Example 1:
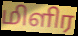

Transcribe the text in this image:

மிளிர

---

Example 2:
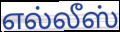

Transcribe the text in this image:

எல்லீஸ்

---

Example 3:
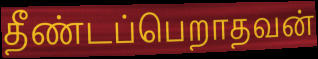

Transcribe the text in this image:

தீண்டப்பெறாதவன்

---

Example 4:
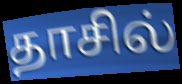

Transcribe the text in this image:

தாசில்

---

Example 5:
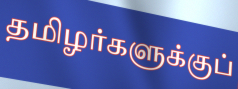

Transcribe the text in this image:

தமிழர்களுக்குப்